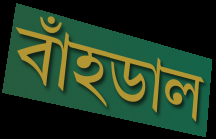
বাঁহডাল